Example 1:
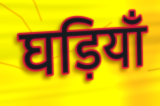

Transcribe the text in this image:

घड़ियाँ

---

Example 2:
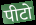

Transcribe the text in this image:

पीटो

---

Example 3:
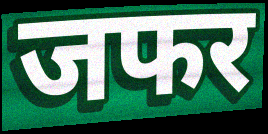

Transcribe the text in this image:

जफर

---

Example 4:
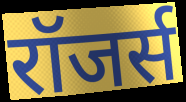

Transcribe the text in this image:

रॉजर्स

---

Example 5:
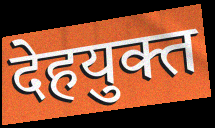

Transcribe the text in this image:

देहयुक्त